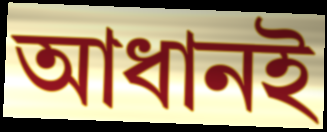
আধানই